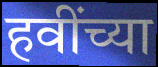
हवींच्या